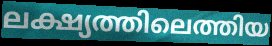
ലക്ഷ്യത്തിലെത്തിയ